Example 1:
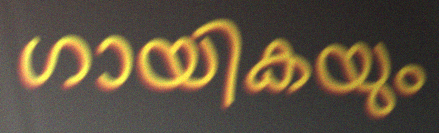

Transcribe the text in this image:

ഗായികയും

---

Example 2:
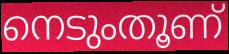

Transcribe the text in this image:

നെടുംതൂണ്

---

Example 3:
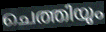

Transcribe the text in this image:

ചെത്തിയും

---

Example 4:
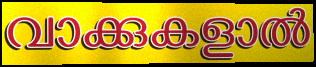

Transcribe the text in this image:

വാക്കുകളാൽ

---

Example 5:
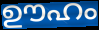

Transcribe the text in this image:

ഊഹം